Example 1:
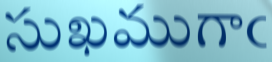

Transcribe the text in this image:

సుఖముగాఁ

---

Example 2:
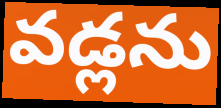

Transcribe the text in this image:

వడ్లను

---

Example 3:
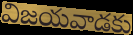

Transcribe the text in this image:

విజయవాడకు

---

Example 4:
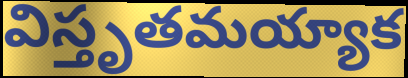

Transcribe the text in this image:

విస్తృతమయ్యాక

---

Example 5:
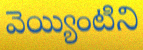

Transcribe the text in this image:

వెయ్యింటిని